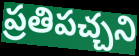
ప్రతిపచ్చని